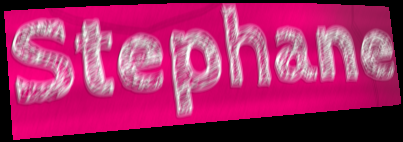
Stephane